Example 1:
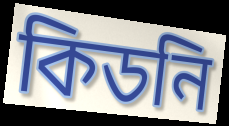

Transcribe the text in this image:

কিডনি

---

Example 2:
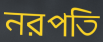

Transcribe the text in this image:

নরপতি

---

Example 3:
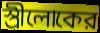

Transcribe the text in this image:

স্ত্রীলোকের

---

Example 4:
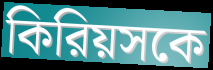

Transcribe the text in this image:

কিরিয়সকে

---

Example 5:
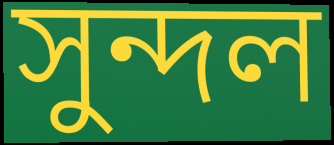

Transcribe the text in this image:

সুন্দল